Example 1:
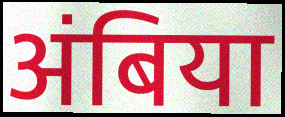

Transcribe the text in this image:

अंबिया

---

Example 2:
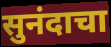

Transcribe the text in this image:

सुनंदाचा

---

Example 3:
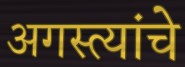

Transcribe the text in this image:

अगस्त्यांचे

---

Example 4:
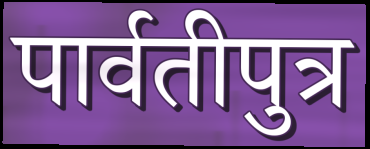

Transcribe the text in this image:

पार्वतीपुत्र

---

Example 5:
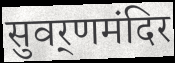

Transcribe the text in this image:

सुवर्णमंदिर